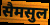
सैमसुल